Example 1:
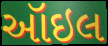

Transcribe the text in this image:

ઑઇલ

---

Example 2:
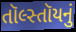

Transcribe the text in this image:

તૉલ્સ્તૉયનું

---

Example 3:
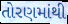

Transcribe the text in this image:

તોરણમાંથી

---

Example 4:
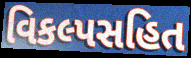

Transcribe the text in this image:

વિકલ્પસહિત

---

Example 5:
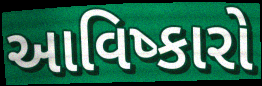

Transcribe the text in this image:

આવિષ્કારો